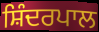
ਸ਼ਿੰਦਰਪਾਲ